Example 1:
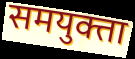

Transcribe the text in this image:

समयुक्ता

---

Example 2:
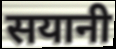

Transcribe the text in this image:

सयानी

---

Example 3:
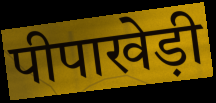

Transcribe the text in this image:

पीपाखेड़ी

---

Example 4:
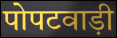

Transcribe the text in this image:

पोपटवाड़ी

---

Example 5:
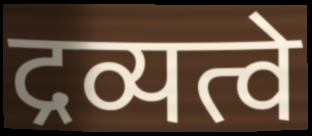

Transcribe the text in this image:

द्रव्यत्वे